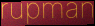
rupman